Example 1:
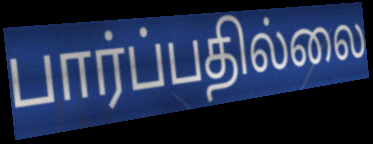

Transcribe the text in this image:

பார்ப்பதில்லை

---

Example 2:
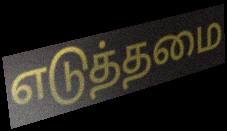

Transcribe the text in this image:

எடுத்தமை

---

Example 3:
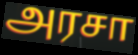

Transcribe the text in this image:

அரசா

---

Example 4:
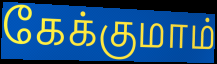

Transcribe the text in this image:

கேக்குமாம்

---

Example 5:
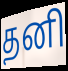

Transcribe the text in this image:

தனி